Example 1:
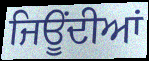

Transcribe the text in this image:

ਜਿਊਂਦੀਆਂ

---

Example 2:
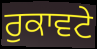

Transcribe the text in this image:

ਰੁਕਾਵਟੇ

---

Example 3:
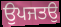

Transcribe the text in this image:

ਉਪਜਤਉ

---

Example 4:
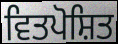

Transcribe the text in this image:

ਵਿਤਪੋਸ਼ਿਤ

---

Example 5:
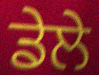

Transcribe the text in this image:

ਡੇਲੇ